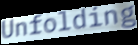
Unfolding